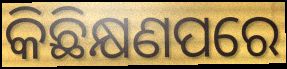
କିଛିକ୍ଷଣପରେ